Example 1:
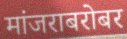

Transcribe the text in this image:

मांजराबरोबर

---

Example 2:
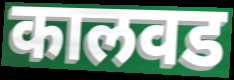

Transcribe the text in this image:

कालवड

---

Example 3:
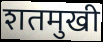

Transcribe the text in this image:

शतमुखी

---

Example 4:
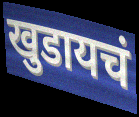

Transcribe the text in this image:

खुडायचं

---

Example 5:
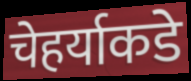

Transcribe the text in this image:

चेहर्याकडे